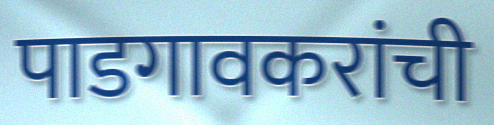
पाडगावकरांची